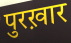
पुरख़ार